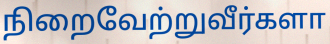
நிறைவேற்றுவீர்களா